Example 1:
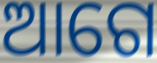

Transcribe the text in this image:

ଆଗେ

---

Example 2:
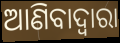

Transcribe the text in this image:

ଆଣିବାଦ୍ୱାରା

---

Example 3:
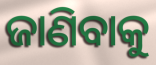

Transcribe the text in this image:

ଜାଣିବାକୁ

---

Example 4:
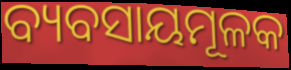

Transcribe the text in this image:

ବ୍ୟବସାୟମୂଳକ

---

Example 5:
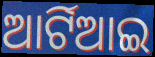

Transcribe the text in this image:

ଆର୍ଟିଆଇ